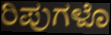
ರಿಪುಗಳೊ